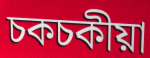
চকচকীয়া